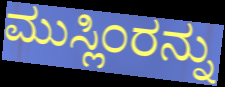
ಮುಸ್ಲಿಂರನ್ನು